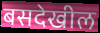
बसदेखील